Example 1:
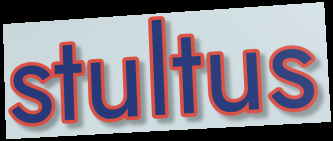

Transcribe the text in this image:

stultus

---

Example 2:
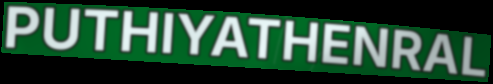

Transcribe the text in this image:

PUTHIYATHENRAL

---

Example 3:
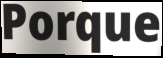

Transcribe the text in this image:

Porque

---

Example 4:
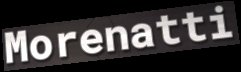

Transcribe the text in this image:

Morenatti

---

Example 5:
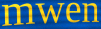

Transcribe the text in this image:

mwen